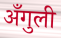
अँगुली